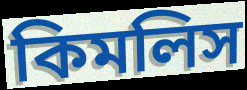
কিমলিস